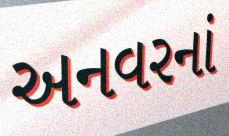
અનવરનાં